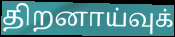
திறனாய்வுக்